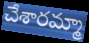
చేశారమ్మా